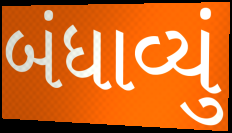
બંધાવ્યું